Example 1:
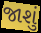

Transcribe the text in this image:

જાશું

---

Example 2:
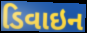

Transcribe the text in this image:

ડિવાઇન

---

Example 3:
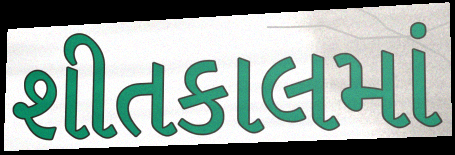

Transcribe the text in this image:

શીતકાલમાં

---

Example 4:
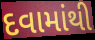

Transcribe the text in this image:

દવામાંથી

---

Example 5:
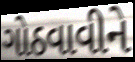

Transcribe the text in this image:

ગોઠવાવીને